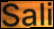
Sali